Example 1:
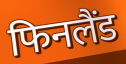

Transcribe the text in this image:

फिनलैंड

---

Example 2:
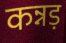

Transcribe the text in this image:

कन्नड़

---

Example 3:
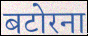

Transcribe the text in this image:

बटोरना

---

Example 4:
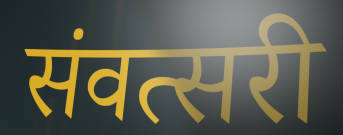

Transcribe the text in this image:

संवत्सरी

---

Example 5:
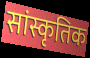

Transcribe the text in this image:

सांस्‍कृतिक